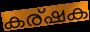
കര്ഷക